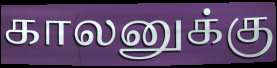
காலனுக்கு